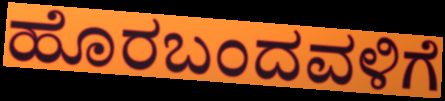
ಹೊರಬಂದವಳಿಗೆ